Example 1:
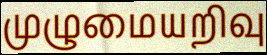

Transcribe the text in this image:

முழுமையறிவு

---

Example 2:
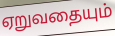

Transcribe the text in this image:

ஏறுவதையும்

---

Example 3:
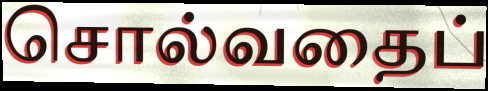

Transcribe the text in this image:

சொல்வதைப்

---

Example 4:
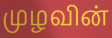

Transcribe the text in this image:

முழவின்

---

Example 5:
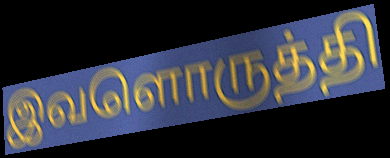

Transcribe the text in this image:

இவளொருத்தி